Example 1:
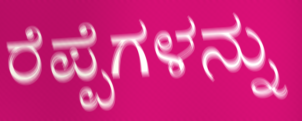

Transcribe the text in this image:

ರೆಪ್ಪೆಗಳನ್ನು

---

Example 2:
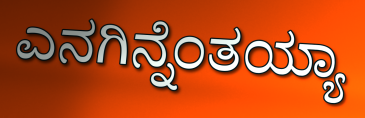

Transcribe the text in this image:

ಎನಗಿನ್ನೆಂತಯ್ಯಾ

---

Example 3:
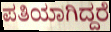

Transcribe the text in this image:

ಪತಿಯಾಗಿದ್ದರೆ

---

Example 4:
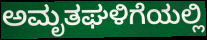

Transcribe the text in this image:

ಅಮೃತಘಳಿಗೆಯಲ್ಲಿ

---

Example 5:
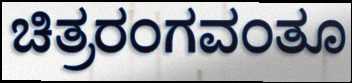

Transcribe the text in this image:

ಚಿತ್ರರಂಗವಂತೂ